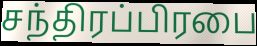
சந்திரப்பிரபை